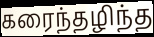
கரைந்தழிந்த